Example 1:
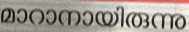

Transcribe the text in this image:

മാറാനായിരുന്നു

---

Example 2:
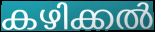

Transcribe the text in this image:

കഴിക്കൽ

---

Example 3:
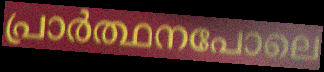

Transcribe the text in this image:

പ്രാർത്ഥനപോലെ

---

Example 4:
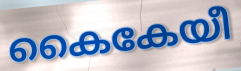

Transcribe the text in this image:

കൈകേയീ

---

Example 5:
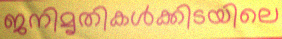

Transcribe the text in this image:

ജനിമൃതികൾക്കിടയിലെ